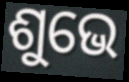
ଶୁଭେ